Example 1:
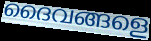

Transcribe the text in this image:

ദൈവങ്ങളെ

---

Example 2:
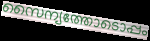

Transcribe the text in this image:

സൈന്യത്തോടൊപ്പം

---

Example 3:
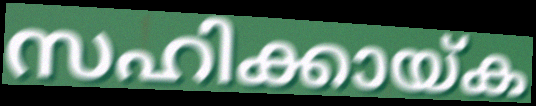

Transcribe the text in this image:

സഹിക്കായ്ക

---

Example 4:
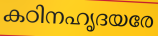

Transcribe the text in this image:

കഠിനഹൃദയരേ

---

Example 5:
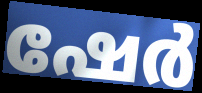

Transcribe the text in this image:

ഷേർ